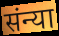
संन्या